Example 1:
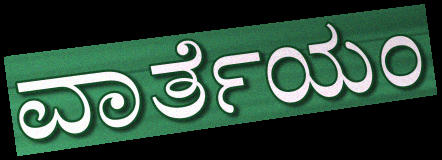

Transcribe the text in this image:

ವಾರ್ತೆಯಂ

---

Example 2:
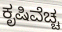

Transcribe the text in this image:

ಕೃಷಿವೆಚ್ಚ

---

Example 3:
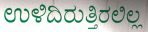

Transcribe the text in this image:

ಉಳಿದಿರುತ್ತಿರಲಿಲ್ಲ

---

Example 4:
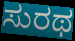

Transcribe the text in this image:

ಸುರಥ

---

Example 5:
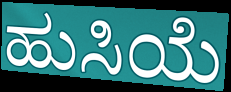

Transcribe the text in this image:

ಹುಸಿಯೆ